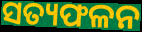
ସତ୍ୟଫଳନ